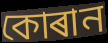
কোৰান